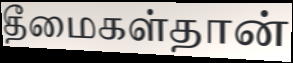
தீமைகள்தான்